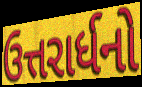
ઉત્તરાર્ધનો